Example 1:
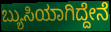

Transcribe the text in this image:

ಬ್ಯುಸಿಯಾಗಿದ್ದೇನೆ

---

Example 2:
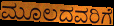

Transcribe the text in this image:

ಮೂಲದವರಿಗೆ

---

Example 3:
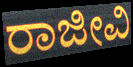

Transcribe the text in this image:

ರಾಜೀವಿ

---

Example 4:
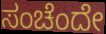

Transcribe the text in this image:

ಸಂಚೆಂದೇ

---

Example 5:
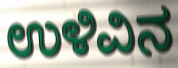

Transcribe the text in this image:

ಉಳಿವಿನ